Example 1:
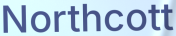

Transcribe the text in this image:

Northcott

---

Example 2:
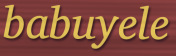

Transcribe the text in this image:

babuyele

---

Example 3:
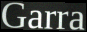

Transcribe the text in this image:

Garra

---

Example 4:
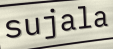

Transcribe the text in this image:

sujala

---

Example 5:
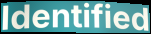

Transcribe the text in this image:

Identified